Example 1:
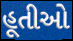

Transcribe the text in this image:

હૂતીઓ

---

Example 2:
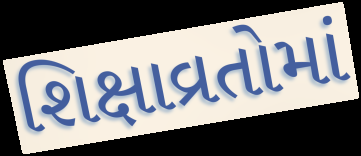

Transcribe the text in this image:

શિક્ષાવ્રતોમાં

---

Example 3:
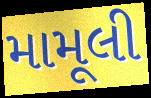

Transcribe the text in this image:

મામૂલી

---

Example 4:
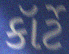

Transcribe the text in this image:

કૉર્ટે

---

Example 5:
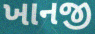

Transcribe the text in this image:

ખાનજી